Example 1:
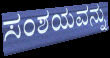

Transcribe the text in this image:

ಸಂಶಯವನ್ನು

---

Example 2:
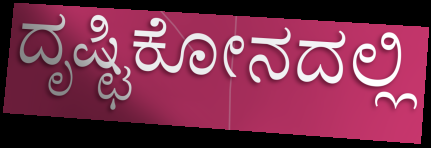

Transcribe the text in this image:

ದೃಷ್ಟಿಕೋನದಲ್ಲಿ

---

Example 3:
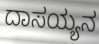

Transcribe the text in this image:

ದಾಸಯ್ಯನ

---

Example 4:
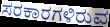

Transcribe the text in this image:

ಸರಕಾರಗಳಿರುವ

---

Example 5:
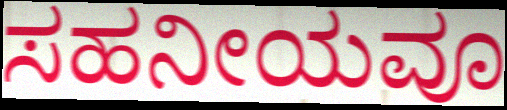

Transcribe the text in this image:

ಸಹನೀಯವೂ